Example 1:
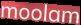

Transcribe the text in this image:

moolam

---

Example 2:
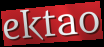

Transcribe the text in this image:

ektao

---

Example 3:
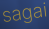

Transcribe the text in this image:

sagai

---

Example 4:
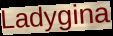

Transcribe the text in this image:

Ladygina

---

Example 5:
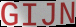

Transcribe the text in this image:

GIJN